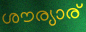
ശൗര്യാര്